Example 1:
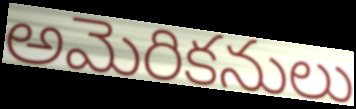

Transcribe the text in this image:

అమెరికనులు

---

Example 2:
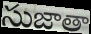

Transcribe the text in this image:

సుజాతా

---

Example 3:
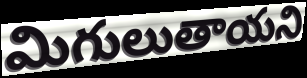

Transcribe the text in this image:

మిగులుతాయని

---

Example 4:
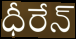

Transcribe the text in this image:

ధీరేన్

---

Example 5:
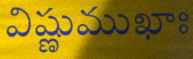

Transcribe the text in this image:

విష్ణుముఖాః